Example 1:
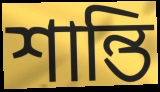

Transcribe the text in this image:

শান্তি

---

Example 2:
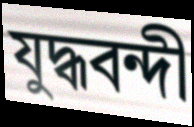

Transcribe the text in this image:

যুদ্ধবন্দী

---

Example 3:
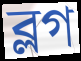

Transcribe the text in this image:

ব্লগ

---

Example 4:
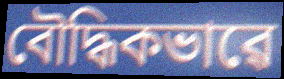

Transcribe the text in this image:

বৌদ্ধিকভাৱে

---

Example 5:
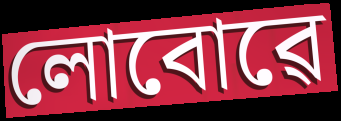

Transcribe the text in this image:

লোবোৱে